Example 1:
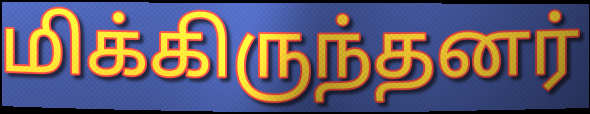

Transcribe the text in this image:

மிக்கிருந்தனர்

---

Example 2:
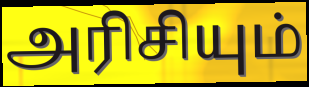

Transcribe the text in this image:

அரிசியும்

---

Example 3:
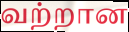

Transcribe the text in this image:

வற்றான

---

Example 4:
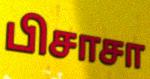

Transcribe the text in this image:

பிசாசா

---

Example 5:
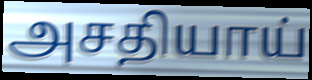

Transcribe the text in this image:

அசதியாய்